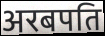
अरबपति